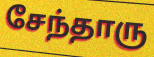
சேந்தாரு